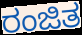
ರಂಜಿತ